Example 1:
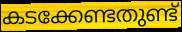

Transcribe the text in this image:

കടക്കേണ്ടതുണ്ട്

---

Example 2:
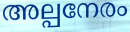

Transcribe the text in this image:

അല്പനേരം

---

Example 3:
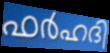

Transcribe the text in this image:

ഫർഹദി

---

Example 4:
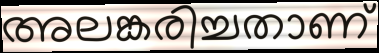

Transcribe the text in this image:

അലങ്കരിച്ചതാണ്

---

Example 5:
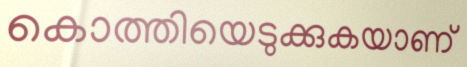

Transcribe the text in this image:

കൊത്തിയെടുക്കുകയാണ്